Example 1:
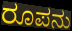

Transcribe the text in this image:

ರೂಪನು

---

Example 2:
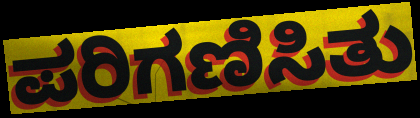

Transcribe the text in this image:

ಪರಿಗಣಿಸಿತು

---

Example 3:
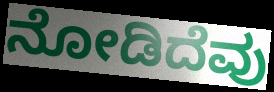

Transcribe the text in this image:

ನೋಡಿದೆವು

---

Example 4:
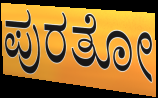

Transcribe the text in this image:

ಪುರತೋ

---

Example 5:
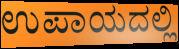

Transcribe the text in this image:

ಉಪಾಯದಲ್ಲಿ